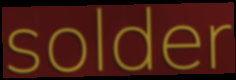
solder